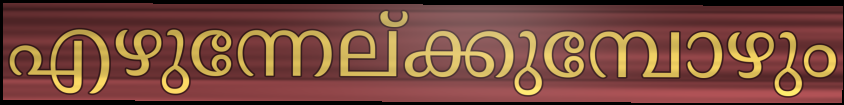
എഴുന്നേല്ക്കുമ്പോഴും